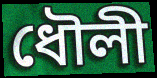
ধৌলী